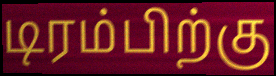
டிரம்பிற்கு